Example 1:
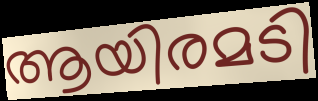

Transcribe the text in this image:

ആയിരമടി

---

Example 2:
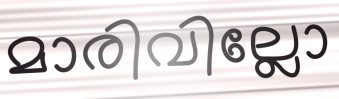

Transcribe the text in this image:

മാരിവില്ലോ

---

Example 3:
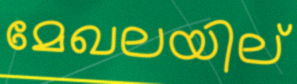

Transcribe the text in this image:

മേഖലയില്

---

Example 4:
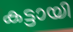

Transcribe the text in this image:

കട്ടായി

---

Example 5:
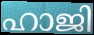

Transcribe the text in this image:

ഹാജി